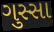
ગુસ્સા